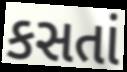
કસતાં